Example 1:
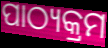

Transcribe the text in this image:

ପାଠ୍ୟକ୍ରମ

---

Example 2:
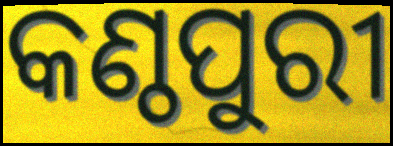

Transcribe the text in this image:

କଣ୍ଠପୁରୀ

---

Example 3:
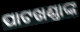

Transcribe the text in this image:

ପାଟଖଣ୍ତାଙ୍କ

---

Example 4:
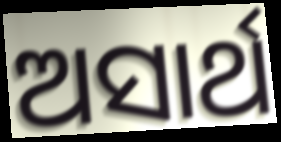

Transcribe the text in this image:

ଅସାର୍ଥ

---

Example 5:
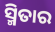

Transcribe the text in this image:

ସ୍ମିତାର